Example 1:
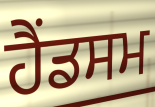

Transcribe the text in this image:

ਹੈਂਡਸਮ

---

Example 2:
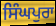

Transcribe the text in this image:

ਸਿੰਘਪੁਰਾ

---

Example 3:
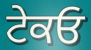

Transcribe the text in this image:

ਟੇਕਓ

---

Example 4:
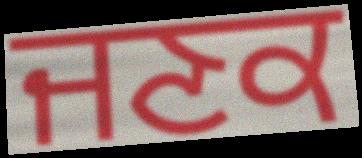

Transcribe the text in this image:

ਜਣਕ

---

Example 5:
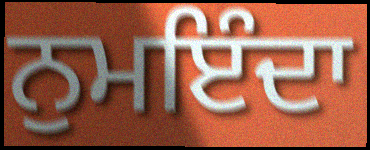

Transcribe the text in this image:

ਨੁਮਇੰਦਾ